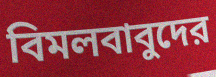
বিমলবাবুদের